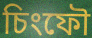
চিংফৌ